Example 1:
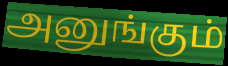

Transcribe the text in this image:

அனுங்கும்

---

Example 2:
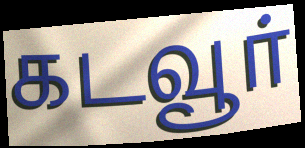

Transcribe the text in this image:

கடவூர்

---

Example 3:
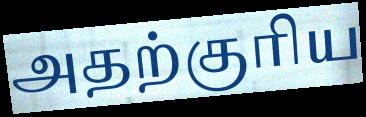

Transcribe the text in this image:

அதற்குரிய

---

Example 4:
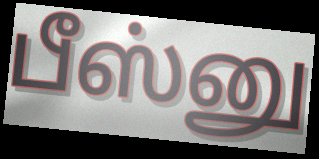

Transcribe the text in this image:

பீஸ்னு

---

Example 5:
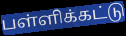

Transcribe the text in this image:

பள்ளிக்கட்டு